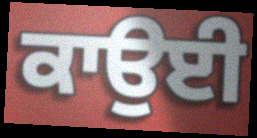
ਕਾਉਈ